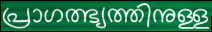
പ്രാഗത്ഭ്യത്തിനുള്ള